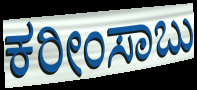
ಕರೀಂಸಾಬು